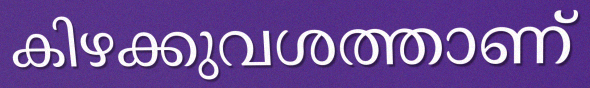
കിഴക്കുവശത്താണ്